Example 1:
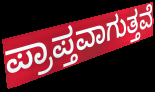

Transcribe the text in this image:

ಪ್ರಾಪ್ತವಾಗುತ್ತವೆ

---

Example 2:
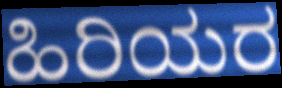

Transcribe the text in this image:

ಹಿರಿಯರ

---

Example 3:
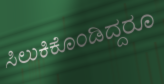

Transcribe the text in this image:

ಸಿಲುಕಿಕೊಂಡಿದ್ದರೂ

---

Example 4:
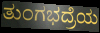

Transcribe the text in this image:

ತುಂಗಭದ್ರೆಯ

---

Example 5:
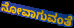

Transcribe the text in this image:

ನೋವಾಗುವಂತೆ